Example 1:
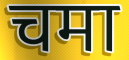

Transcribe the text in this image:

चमा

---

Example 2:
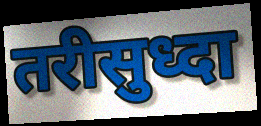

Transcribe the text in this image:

तरीसुध्दा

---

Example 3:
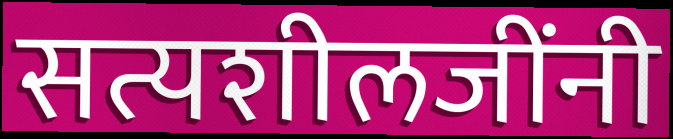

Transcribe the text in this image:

सत्यशीलजींनी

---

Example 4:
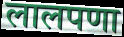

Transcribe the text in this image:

लालपणा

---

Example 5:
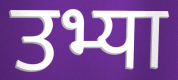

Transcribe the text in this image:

उभ्या